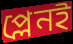
প্লেনই